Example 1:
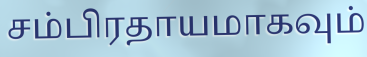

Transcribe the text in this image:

சம்பிரதாயமாகவும்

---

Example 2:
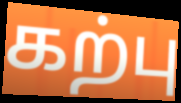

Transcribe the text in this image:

கற்பு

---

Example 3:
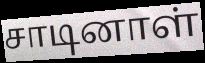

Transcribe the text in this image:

சாடினாள்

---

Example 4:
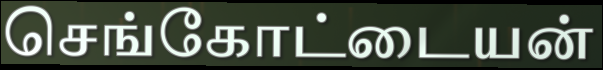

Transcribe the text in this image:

செங்கோட்டையன்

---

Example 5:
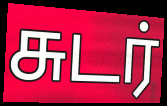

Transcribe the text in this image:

சுடர்